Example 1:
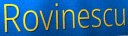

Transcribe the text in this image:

Rovinescu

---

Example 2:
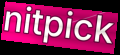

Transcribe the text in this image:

nitpick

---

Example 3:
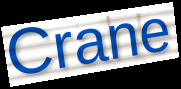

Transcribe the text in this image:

Crane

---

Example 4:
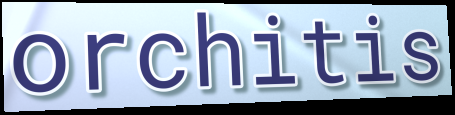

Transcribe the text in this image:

orchitis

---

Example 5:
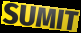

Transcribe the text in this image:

SUMIT